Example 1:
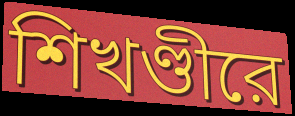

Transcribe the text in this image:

শিখণ্ডীরে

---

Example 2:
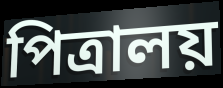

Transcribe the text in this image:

পিত্রালয়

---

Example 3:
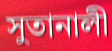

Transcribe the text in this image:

সুতানালী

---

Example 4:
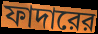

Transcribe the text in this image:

ফাদারের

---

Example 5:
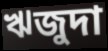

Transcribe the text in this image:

ঋজুদা